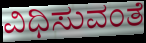
ವಿಧಿಸುವಂತೆ